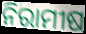
ନିରାମୀଷ